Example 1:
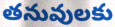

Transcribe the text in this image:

తనువులకు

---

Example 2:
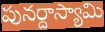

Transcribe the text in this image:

పునర్దాస్యామి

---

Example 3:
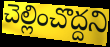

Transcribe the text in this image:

చెల్లించొద్దని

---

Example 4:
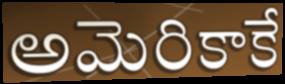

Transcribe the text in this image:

అమెరికాకే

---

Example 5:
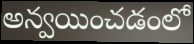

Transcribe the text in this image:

అన్వయించడంలో